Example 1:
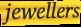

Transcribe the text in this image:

jewellers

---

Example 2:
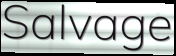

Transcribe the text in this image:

Salvage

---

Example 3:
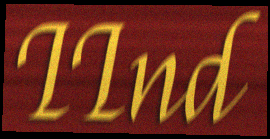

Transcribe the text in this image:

IInd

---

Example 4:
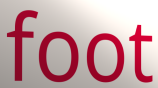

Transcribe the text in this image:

foot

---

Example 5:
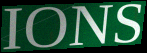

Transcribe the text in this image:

IONS